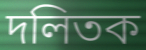
দলিতক